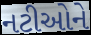
નટીઓને